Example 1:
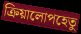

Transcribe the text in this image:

ক্রিয়ালোপহেতু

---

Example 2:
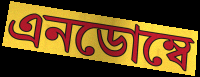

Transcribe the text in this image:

এনডোম্বে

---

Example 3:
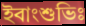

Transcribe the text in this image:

ইবাংশুভিঃ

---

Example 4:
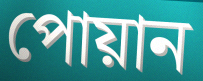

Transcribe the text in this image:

পোয়ান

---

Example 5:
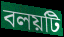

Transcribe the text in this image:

বলয়টি